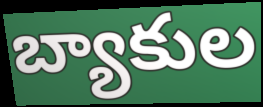
బ్యాకుల